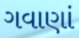
ગવાણાં